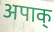
अपाक्